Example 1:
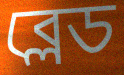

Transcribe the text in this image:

ব্লেড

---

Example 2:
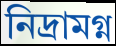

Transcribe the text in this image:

নিদ্ৰামগ্ন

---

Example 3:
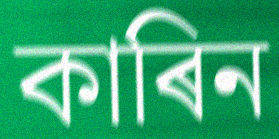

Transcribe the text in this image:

কাৰিন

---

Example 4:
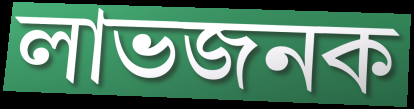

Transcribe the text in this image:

লাভজনক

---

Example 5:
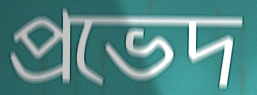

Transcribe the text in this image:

প্ৰভেদ